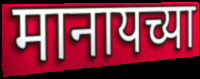
मानायच्या